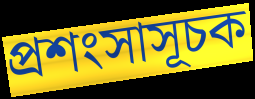
প্ৰশংসাসূচক